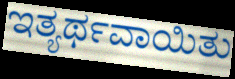
ಇತ್ಯರ್ಥವಾಯಿತು